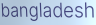
bangladesh